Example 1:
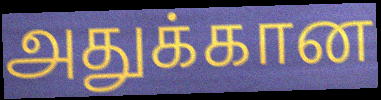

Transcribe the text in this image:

அதுக்கான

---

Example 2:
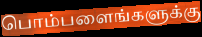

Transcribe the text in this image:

பொம்பளைங்களுக்கு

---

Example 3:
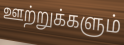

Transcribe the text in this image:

ஊற்றுக்களும்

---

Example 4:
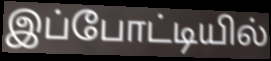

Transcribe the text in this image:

இப்போட்டியில்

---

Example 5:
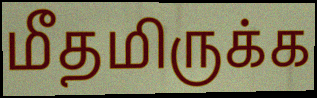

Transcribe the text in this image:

மீதமிருக்க